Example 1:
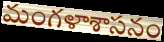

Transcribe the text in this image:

మంగళాశాసనం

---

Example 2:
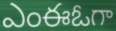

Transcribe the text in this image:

ఎంఈఓగా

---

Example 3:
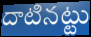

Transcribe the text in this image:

దాటినట్టు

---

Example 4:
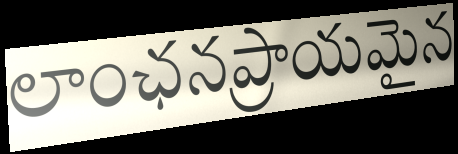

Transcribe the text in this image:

లాంఛనప్రాయమైన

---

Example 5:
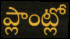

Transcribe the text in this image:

ప్లాంట్లో